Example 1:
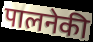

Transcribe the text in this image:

पालनेकी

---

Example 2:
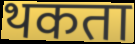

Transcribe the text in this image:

थकता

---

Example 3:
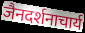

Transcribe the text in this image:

जैनदर्शनाचार्य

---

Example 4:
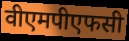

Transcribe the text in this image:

वीएमपीएफसी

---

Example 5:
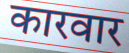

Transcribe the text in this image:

कारवार